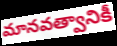
మానవత్వానికీ